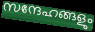
സന്ദേഹങ്ങളും